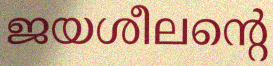
ജയശീലന്റെ